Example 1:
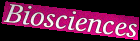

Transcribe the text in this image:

Biosciences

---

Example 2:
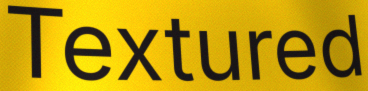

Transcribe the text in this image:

Textured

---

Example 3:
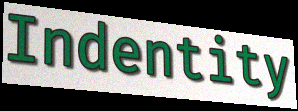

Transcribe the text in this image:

Indentity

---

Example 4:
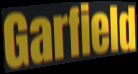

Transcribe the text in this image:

Garfield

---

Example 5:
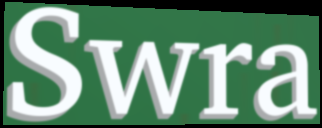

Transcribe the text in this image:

Swra